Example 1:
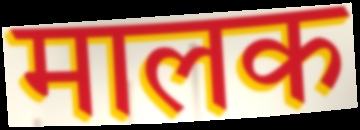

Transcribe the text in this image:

मालक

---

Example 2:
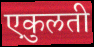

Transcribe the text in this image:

एकुलती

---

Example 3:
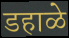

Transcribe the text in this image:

डहाळे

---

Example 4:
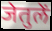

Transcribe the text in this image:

जेतुलें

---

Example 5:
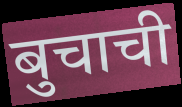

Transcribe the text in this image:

बुचाची